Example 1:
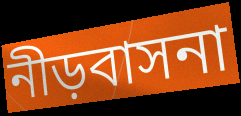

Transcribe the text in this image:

নীড়বাসনা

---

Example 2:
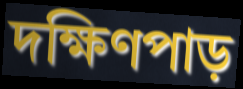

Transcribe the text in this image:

দক্ষিণপাড়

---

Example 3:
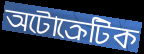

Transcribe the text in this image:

অটোক্রেটিক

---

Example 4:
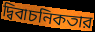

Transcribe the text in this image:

দ্বিবাচনিকতার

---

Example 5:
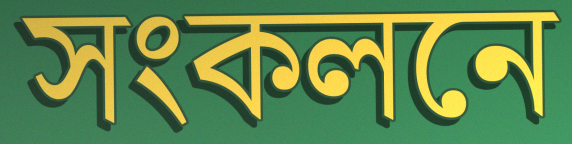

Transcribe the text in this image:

সংকলনে